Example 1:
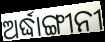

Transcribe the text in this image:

ଅର୍ଦ୍ଧାଙ୍ଗୀନୀ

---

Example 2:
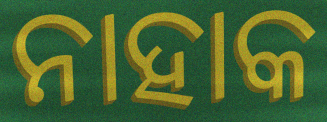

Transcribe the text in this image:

ନାହାକ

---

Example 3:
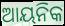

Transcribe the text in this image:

ଆୟନିକ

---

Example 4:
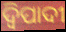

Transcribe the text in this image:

ଦ୍ୱିପାଦୀ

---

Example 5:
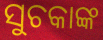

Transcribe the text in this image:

ସୁଚକାଙ୍କ